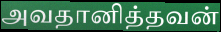
அவதானித்தவன்